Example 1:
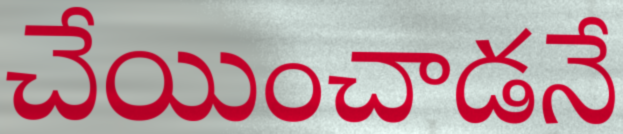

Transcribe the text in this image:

చేయించాడనే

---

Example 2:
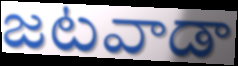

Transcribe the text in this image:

జటవాడా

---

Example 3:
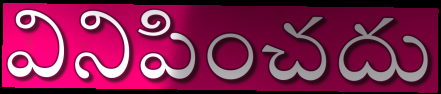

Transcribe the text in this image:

వినిపించదు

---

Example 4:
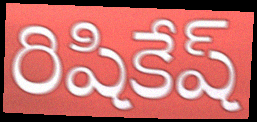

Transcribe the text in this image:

రిషికేష్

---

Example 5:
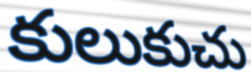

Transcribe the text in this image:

కులుకుచు